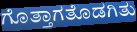
ಗೊತ್ತಾಗತೊಡಗಿತು